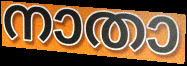
നാതാ